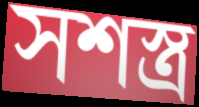
সশস্ত্র